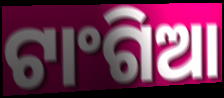
ଟାଂଗିଆ